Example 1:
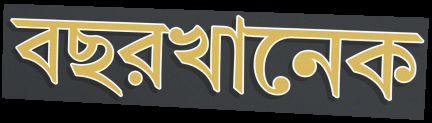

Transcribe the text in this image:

বছরখানেক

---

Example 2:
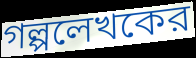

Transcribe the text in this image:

গল্পলেখকের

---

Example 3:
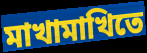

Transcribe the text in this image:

মাখামাখিতে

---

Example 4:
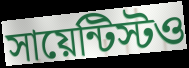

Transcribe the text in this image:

সায়েন্টিস্টও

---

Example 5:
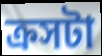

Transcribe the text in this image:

ক্রসটা